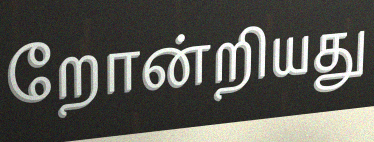
றோன்றியது